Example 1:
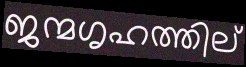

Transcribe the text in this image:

ജന്മഗൃഹത്തില്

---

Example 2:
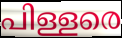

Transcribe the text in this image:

പിള്ളരെ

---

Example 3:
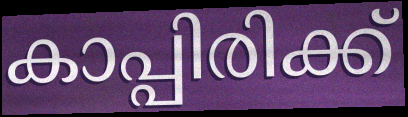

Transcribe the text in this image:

കാപ്പിരിക്ക്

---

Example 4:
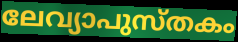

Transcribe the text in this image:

ലേവ്യാപുസ്തകം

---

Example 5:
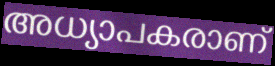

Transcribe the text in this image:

അധ്യാപകരാണ്